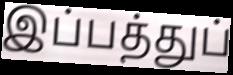
இப்பத்துப்